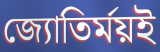
জ্যোতির্ময়ই